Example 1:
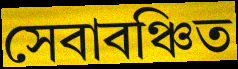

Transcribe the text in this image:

সেবাবঞ্চিত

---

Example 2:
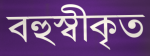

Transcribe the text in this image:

বহুস্বীকৃত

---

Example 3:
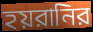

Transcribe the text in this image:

হয়রানির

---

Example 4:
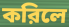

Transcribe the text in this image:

করিলে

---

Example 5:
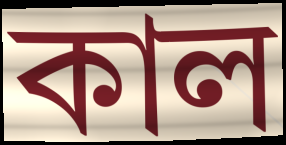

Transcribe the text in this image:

কাল